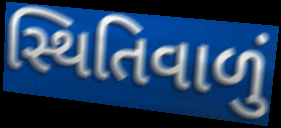
સ્થિતિવાળું